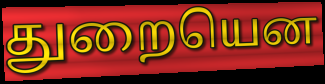
துறையென